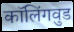
कॉलिंगवुड